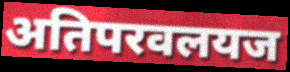
अतिपरवलयज